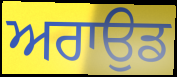
ਅਰਾਉਡ